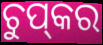
ଚୁପ୍‌କର